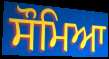
ਸੌਮਿਆ